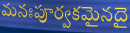
మనఃపూర్వకమైనదై